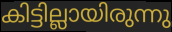
കിട്ടില്ലായിരുന്നു